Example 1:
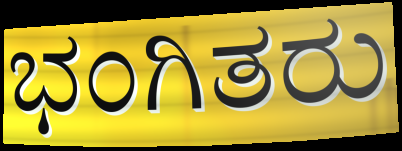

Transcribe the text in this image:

ಭಂಗಿತರು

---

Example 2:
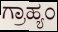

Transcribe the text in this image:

ಗ್ರಾಹ್ಯಂ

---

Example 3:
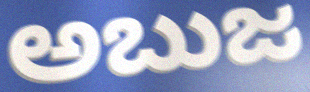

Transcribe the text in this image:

ಅಬುಜ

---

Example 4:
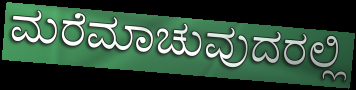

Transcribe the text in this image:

ಮರೆಮಾಚುವುದರಲ್ಲಿ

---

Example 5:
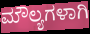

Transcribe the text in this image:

ಮೌಲ್ಯಗಳಾಗಿ